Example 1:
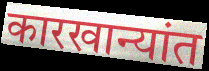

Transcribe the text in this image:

कारखान्यांत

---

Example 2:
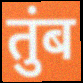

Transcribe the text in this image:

तुंब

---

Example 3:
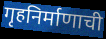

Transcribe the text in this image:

गृहनिर्माणाची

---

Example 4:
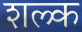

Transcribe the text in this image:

शल्क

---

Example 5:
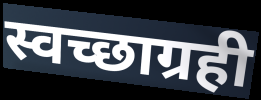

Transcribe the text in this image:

स्वच्छाग्रही